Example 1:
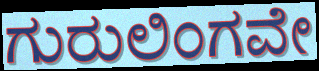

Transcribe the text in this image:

ಗುರುಲಿಂಗವೇ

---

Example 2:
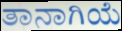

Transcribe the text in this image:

ತಾನಾಗಿಯೆ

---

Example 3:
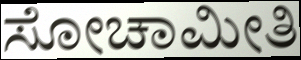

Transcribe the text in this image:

ಸೋಚಾಮೀತಿ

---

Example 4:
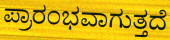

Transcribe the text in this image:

ಪ್ರಾರಂಭವಾಗುತ್ತದೆ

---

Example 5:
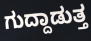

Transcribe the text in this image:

ಗುದ್ದಾಡುತ್ತ